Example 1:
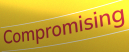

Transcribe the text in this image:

Compromising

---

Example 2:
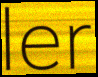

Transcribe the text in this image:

ler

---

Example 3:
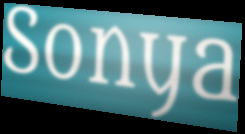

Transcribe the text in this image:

Sonya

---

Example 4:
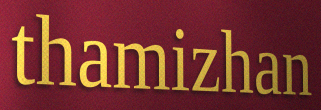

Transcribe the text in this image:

thamizhan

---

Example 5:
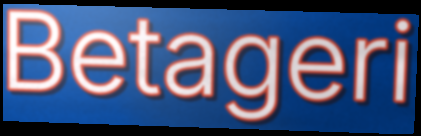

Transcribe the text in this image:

Betageri